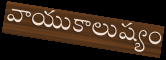
వాయుకాలుష్యం